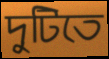
দুটিতে